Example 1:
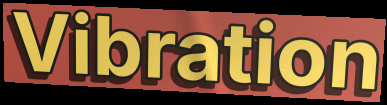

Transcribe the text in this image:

Vibration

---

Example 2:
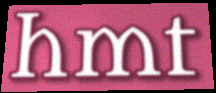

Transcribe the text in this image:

hmt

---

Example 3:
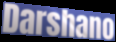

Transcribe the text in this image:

Darshano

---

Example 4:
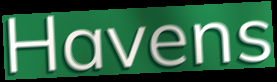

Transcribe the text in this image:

Havens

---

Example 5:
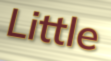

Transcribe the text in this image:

Little